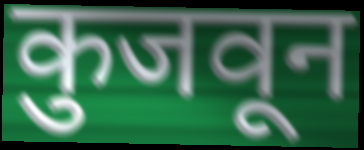
कुजवून